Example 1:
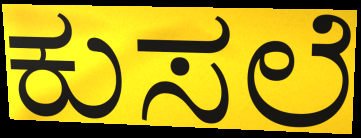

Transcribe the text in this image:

ಕುಸಲೆ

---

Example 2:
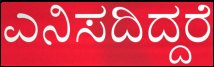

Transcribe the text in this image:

ಎನಿಸದಿದ್ದರೆ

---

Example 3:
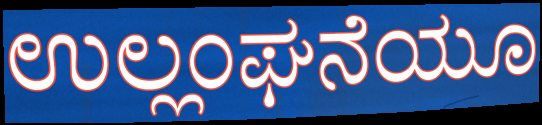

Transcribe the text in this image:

ಉಲ್ಲಂಘನೆಯೂ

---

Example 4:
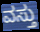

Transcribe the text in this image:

ವಸ್ತು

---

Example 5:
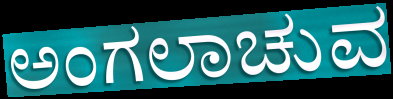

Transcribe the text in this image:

ಅಂಗಲಾಚುವ